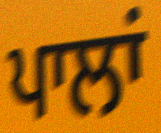
ਪਾਲਾਂ